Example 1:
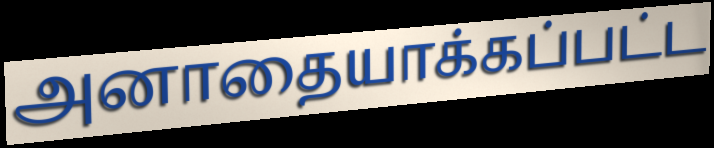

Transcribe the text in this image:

அனாதையாக்கப்பட்ட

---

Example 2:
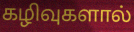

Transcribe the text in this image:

கழிவுகளால்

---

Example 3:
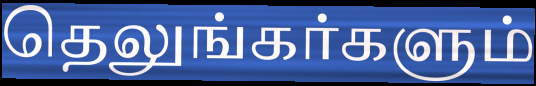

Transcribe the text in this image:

தெலுங்கர்களும்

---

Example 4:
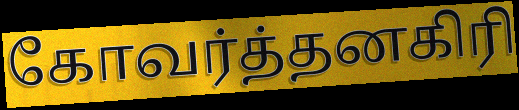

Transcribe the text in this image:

கோவர்த்தனகிரி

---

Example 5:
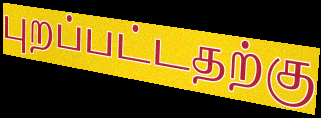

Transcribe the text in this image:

புறப்பட்டதற்கு